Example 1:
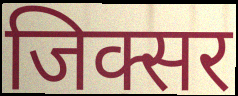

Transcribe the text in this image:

जिक्सर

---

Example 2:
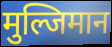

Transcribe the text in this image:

मुल्जिमान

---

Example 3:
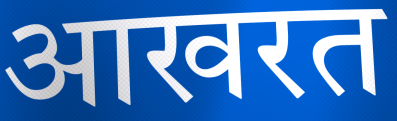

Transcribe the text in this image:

आखरत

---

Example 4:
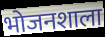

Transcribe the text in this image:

भोजनशाला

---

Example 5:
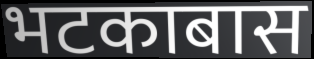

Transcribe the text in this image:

भटकाबास